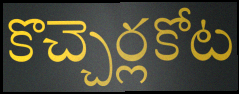
కొచ్చెర్లకోట